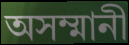
অসম্মানী